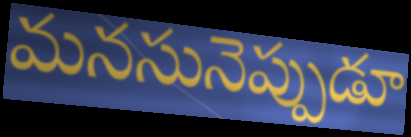
మనసునెప్పుడూ